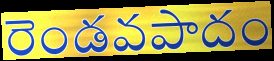
రెండవపాదం